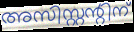
അസിസ്റ്റന്റിന്